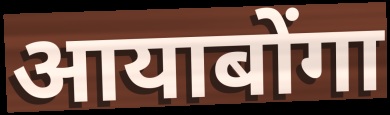
आयाबोंगा